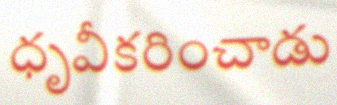
ధృవీకరించాడు